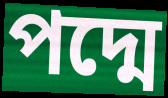
পদ্মে